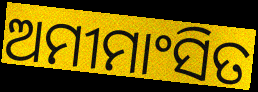
ଅମୀମାଂସିତ